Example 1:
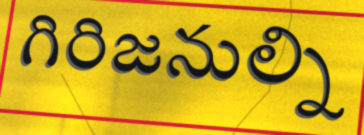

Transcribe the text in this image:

గిరిజనుల్ని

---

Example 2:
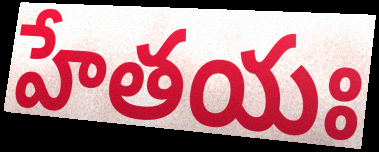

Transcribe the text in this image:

హేతయః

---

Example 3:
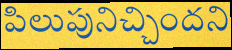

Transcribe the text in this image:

పిలుపునిచ్చిందని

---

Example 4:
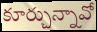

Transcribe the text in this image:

కూర్చున్నావో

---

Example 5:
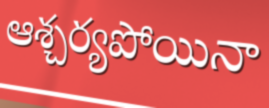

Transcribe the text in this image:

ఆశ్చర్యపోయినా